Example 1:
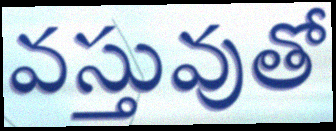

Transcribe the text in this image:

వస్తువుతో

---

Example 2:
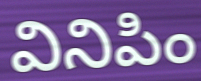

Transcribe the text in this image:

వినిపిం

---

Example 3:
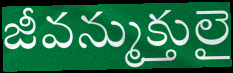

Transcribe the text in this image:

జీవన్ముక్తులై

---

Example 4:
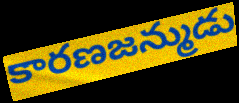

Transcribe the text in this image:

కారణజన్ముడు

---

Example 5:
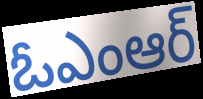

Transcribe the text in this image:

ఓఎంఆర్